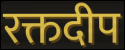
रक्तदीप